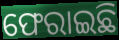
ଫେରାଇଛି